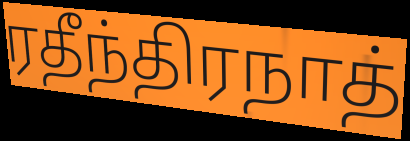
ரதீந்திரநாத்